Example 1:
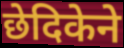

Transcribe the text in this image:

छेदिकेने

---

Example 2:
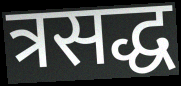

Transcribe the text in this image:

त्रसद्ध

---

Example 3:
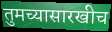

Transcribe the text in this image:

तुमच्यासारखीच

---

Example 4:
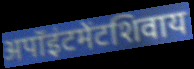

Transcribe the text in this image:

अपॉइंटमेंटशिवाय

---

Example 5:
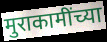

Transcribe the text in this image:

मुराकामींच्या